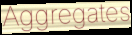
Aggregates